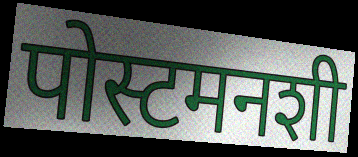
पोस्टमनशी